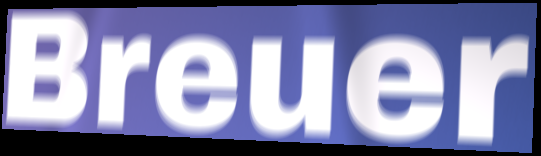
Breuer